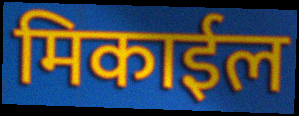
मिकाईल